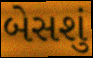
બેસશું